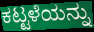
ಕಟ್ಟಳೆಯನ್ನು